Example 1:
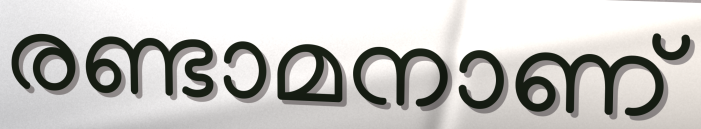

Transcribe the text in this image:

രണ്ടാമനാണ്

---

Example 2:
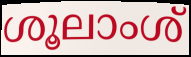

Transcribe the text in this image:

ശൂലാംശ്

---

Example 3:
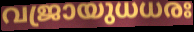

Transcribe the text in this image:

വജ്രായുധധരഃ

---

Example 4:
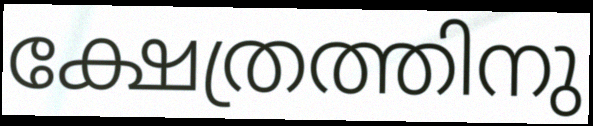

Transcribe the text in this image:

ക്ഷേത്രത്തിനു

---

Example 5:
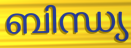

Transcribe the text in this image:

ബിന്ധ്യ